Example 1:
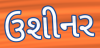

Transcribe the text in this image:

ઉશીનર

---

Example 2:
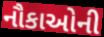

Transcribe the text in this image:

નૌકાઓની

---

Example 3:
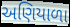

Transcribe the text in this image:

અણિયાળા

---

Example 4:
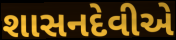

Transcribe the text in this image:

શાસનદેવીએ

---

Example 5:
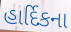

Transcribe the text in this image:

હાર્દિકના